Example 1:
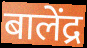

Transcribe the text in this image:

बालेंद्र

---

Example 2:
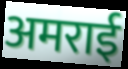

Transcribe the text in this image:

अमराई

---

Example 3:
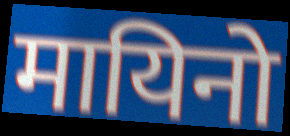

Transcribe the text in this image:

मायिनो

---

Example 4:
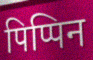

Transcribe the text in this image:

पिप्पिन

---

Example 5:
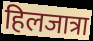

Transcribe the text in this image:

हिलजात्रा